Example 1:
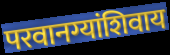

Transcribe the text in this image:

परवानग्यांशिवाय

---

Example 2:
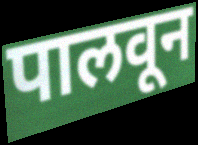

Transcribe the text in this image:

पालवून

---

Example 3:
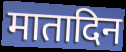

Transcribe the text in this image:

मातादिन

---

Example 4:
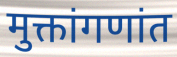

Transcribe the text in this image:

मुक्तांगणांत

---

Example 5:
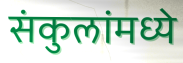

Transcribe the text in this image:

संकुलांमध्ये